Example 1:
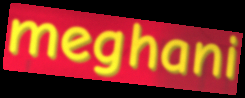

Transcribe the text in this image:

meghani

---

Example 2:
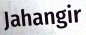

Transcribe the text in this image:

Jahangir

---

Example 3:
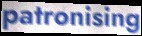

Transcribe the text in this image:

patronising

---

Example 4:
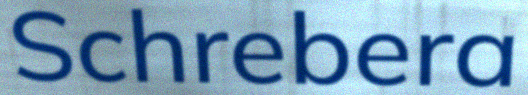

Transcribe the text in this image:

Schrebera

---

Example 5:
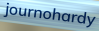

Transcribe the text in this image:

journohardy